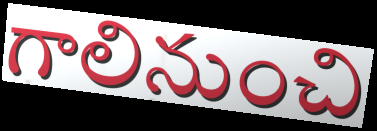
గాలినుంచి